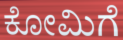
ಕೋಮಿಗೆ